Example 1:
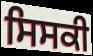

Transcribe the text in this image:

ਸਿਸਕੀ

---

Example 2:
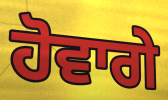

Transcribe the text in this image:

ਹੋਵਾਗੇ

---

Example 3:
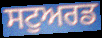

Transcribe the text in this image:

ਸਟੁਅਰਡ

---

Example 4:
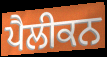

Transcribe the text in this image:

ਪੈਲੀਕਨ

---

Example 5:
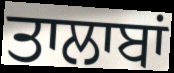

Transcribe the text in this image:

ਤਾਲਾਬਾਂ